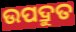
ଉପଦ୍ରୁତ